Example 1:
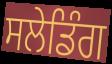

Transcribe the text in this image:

ਸਲੇਡਿੰਗ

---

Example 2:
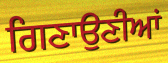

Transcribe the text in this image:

ਗਿਣਾਉਣੀਆਂ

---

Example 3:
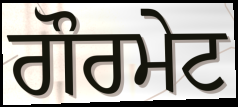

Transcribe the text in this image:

ਗੌਰਮੇਟ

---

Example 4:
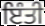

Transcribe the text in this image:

ਇੰਤੀ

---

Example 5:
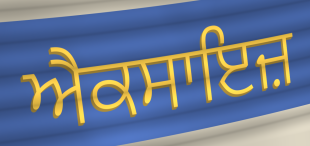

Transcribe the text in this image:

ਐਕਸਾਇਜ਼